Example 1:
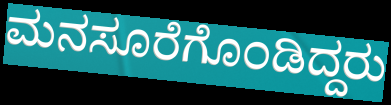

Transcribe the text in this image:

ಮನಸೂರೆಗೊಂಡಿದ್ದರು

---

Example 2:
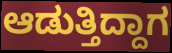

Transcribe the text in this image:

ಆಡುತ್ತಿದ್ದಾಗ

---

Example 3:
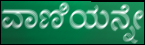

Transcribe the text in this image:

ವಾಣಿಯನ್ನೇ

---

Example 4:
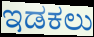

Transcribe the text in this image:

ಇಡಕಲು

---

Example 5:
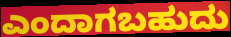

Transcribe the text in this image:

ಎಂದಾಗಬಹುದು